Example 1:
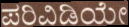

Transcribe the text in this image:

ಪರಿವಿಡಿಯೇ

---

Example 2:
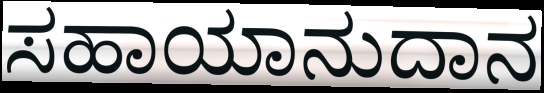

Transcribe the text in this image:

ಸಹಾಯಾನುದಾನ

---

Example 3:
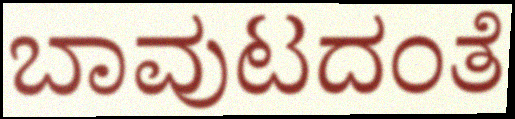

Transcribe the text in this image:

ಬಾವುಟದಂತೆ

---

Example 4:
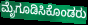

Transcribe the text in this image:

ಮೈಗೂಡಿಸಿಕೊಂಡರು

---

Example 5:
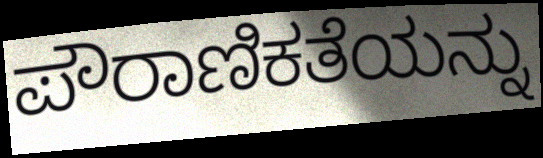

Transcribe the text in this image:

ಪೌರಾಣಿಕತೆಯನ್ನು